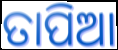
ତାପିଆ